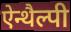
ऐन्थैल्पी